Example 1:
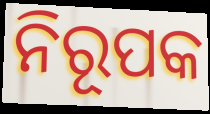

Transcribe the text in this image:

ନିରୂପକ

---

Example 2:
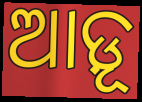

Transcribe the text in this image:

ଆଡ଼ୂ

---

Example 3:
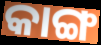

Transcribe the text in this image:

କାଙ୍ଗ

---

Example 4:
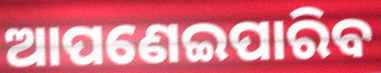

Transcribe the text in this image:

ଆପଣେଇପାରିବ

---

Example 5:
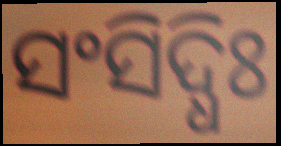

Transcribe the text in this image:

ସଂସିଦ୍ଧିଃ